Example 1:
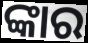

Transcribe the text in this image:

ଙ୍କାର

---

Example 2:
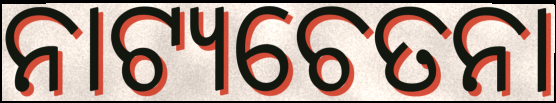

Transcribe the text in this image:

ନାଟ୍ୟଚେତନା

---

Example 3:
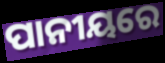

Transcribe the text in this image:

ପାନୀୟରେ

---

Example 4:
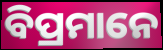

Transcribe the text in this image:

ବିପ୍ରମାନେ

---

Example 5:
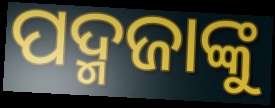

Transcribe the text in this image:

ପଦ୍ମଜାଙ୍କୁ